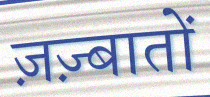
ज़ज़्बातों